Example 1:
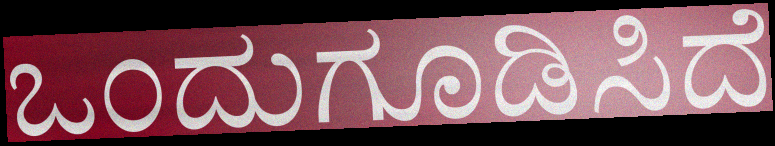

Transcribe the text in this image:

ಒಂದುಗೂಡಿಸಿದೆ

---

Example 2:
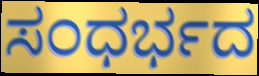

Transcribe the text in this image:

ಸಂಧರ್ಭದ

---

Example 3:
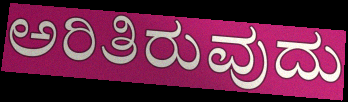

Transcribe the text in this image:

ಅರಿತಿರುವುದು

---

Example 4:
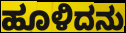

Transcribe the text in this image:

ಹೂಳಿದನು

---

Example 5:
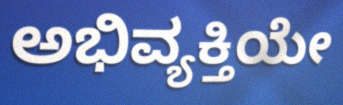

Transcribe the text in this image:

ಅಭಿವ್ಯಕ್ತಿಯೇ